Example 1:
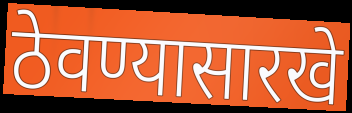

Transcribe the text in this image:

ठेवण्यासारखे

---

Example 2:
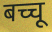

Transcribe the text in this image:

बच्चू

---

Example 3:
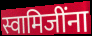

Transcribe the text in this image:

स्वामिजींना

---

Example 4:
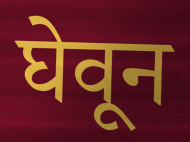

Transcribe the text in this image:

घेवून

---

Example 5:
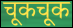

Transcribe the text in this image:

चूकचूक